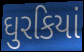
ઘુરકિયાં